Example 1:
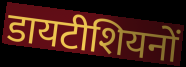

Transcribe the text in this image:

डायटीशियनों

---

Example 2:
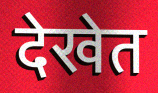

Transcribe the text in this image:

देखेत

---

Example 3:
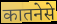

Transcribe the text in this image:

कातनेसे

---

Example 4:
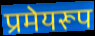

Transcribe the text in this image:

प्रमेयरूप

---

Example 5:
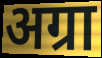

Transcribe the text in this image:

अग्रा